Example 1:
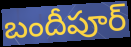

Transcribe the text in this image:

బందీపూర్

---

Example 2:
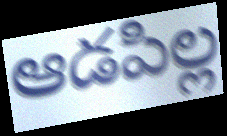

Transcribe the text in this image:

ఆడపిల్ల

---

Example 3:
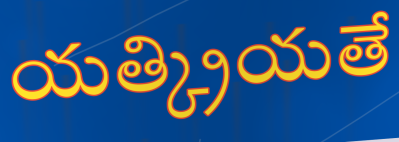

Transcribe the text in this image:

యత్క్రియతే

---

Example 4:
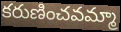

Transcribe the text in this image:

కరుణించవమ్మా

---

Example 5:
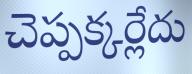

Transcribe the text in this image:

చెప్పక్కర్లేదు